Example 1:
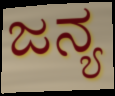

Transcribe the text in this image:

ಜನ್ಯ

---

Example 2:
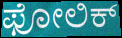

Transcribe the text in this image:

ಫೋಲಿಕ್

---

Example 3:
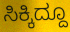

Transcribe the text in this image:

ಸಿಕ್ಕಿದ್ದೂ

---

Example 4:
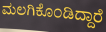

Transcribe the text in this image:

ಮಲಗಿಕೊಂಡಿದ್ದಾರೆ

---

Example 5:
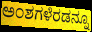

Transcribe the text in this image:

ಅಂಶಗಳೆರಡನ್ನೂ